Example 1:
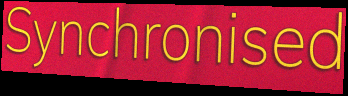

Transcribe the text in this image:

Synchronised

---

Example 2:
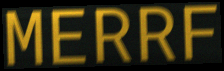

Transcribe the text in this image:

MERRF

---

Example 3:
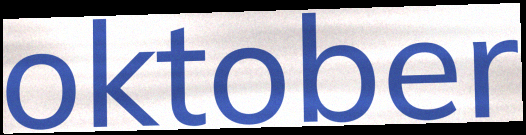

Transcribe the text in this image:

oktober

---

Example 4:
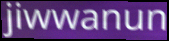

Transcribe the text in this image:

jiwwanun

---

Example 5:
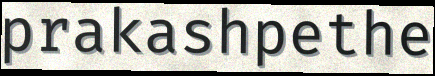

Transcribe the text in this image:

prakashpethe